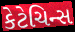
કેટેચિન્સ